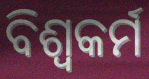
ବିଶ୍ୱକର୍ମ